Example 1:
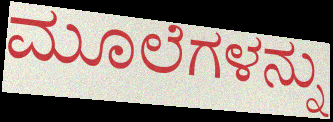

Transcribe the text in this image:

ಮೂಲೆಗಳನ್ನು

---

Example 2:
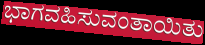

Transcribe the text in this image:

ಭಾಗವಹಿಸುವಂತಾಯಿತು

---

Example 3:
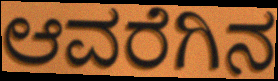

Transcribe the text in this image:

ಆವರೆಗಿನ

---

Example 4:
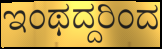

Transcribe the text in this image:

ಇಂಥದ್ದರಿಂದ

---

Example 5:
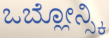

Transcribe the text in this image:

ಒಬ್ಲೋನ್ಸ್ಕಿ